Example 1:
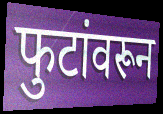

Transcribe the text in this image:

फुटांवरून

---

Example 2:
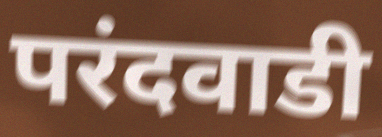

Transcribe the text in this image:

परंदवाडी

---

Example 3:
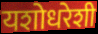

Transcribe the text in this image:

यशोधरेशी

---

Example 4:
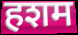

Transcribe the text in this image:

हशम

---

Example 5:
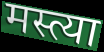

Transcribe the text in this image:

मस्त्या